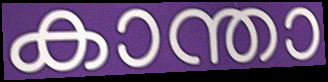
കാന്താ